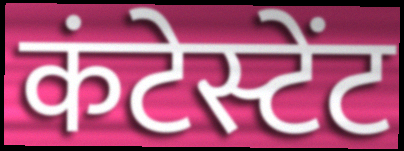
कंटेस्‍टेंट